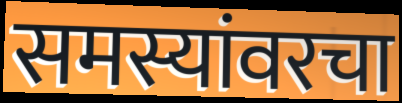
समस्यांवरचा